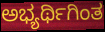
ಅಭ್ಯರ್ಥಿಗಿಂತ